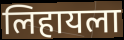
लिहायला